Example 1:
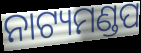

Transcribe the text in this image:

ନାଟ୍ୟମଣ୍ଡପ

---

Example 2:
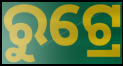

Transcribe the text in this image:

ରୁଟ୍ରେ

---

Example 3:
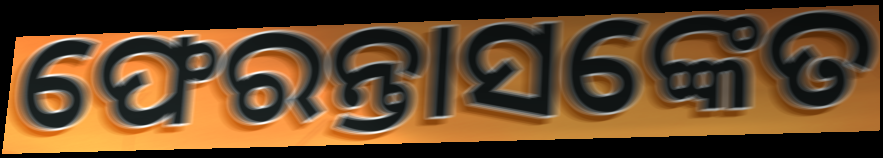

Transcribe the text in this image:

ଫେରନ୍ତାସଙ୍କେତ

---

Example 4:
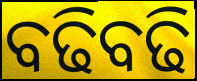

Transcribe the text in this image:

ବଢିବଢି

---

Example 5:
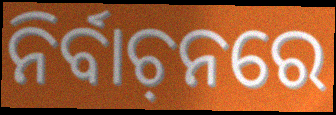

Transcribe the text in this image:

ନିର୍ବାଚ଼ନରେ